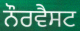
ਨੌਰਵੈਸਟ